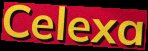
Celexa